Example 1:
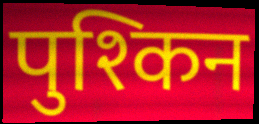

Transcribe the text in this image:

पुश्किन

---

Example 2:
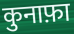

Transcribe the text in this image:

कुनाफ़ा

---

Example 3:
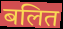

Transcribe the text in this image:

बलित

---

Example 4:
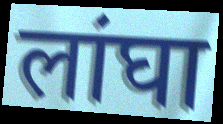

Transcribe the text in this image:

लांघा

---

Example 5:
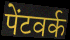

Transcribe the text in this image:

पेंटवर्क